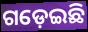
ଗଡ଼େଇଛି